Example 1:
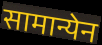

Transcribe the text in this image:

सामान्येन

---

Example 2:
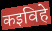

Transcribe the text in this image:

कइविहे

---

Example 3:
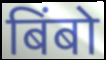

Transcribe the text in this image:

बिंबो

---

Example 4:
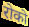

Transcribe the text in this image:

रोको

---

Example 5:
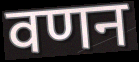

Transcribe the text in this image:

वणन